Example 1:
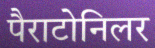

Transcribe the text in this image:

पैराटोनिलर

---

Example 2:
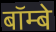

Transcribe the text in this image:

बॉम्बे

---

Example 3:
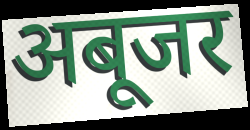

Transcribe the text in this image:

अबूजर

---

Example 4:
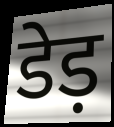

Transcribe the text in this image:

डेड़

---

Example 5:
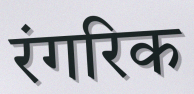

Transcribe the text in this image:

रंगरिक